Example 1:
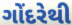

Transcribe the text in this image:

ગોંદરેથી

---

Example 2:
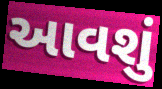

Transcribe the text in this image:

આવશું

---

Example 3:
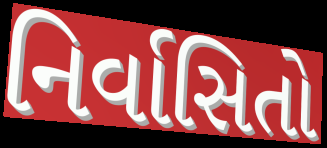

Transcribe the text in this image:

નિર્વાસિતો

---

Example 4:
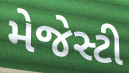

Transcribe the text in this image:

મેજેસ્ટી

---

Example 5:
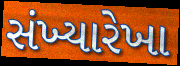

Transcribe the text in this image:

સંખ્યારેખા